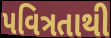
પવિત્રતાથી